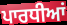
ਪਾਰਧੀਆਂ